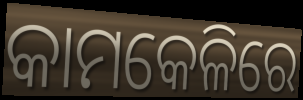
କାମକେଳିରେ